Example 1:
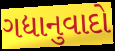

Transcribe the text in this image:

ગદ્યાનુવાદો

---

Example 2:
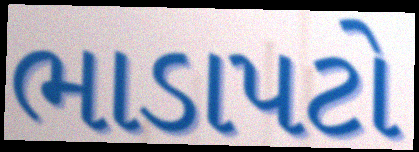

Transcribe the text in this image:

ભાડાપટો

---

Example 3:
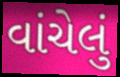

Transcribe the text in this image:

વાંચેલું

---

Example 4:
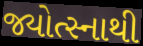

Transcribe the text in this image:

જ્યોત્સ્નાથી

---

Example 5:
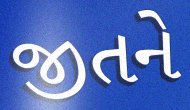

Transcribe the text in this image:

જીતને